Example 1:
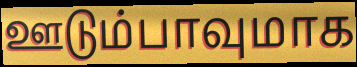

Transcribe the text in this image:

ஊடும்பாவுமாக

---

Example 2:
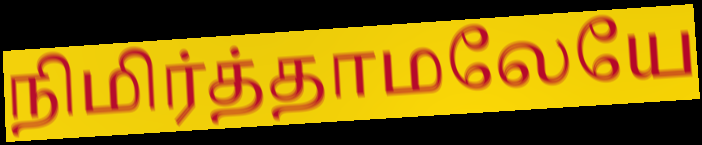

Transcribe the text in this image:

நிமிர்த்தாமலேயே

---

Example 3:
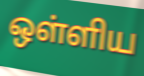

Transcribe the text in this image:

ஒள்ளிய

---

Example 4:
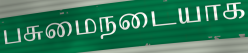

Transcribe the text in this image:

பசுமைநடையாக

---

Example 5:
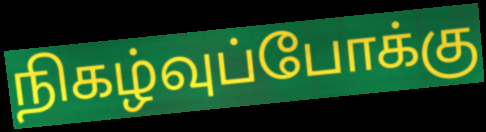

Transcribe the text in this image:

நிகழ்வுப்போக்கு